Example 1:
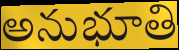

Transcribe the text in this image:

అనుభూతి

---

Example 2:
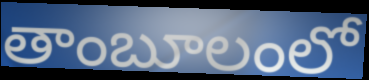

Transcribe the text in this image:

తాంబూలంలో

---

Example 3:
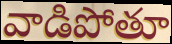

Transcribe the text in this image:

వాడిపోతూ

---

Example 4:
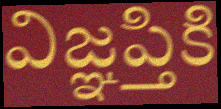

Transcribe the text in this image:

విజ్ఞప్తికి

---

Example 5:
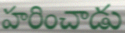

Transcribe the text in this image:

హరించాడు